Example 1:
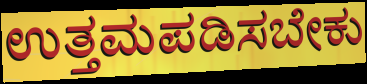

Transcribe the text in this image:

ಉತ್ತಮಪಡಿಸಬೇಕು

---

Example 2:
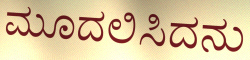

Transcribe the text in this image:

ಮೂದಲಿಸಿದನು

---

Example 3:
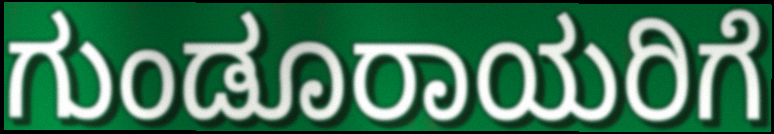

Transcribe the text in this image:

ಗುಂಡೂರಾಯರಿಗೆ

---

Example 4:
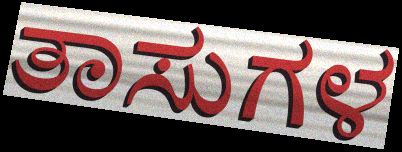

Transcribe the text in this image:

ತಾಸುಗಳ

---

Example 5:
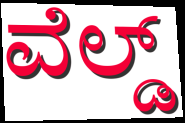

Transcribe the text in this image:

ವೆಲ್ಡ್